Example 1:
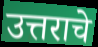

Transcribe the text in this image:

उत्तराचे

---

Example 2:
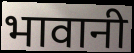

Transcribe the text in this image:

भावानी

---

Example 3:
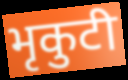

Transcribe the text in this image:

भृकुटी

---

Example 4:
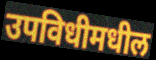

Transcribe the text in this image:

उपविधीमधील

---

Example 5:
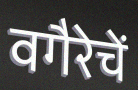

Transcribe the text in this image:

वगैरेचें